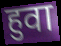
हुवा